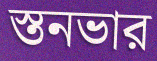
স্তনভার